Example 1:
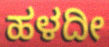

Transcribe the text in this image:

ಹಳದೀ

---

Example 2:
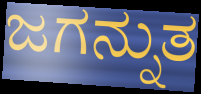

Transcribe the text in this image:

ಜಗನ್ನುತ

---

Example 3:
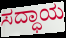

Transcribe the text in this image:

ಸದ್ಧಾಯ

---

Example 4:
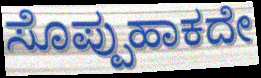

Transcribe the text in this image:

ಸೊಪ್ಪುಹಾಕದೇ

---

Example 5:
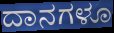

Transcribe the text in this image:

ದಾನಗಳೂ